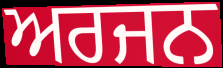
ਅਰਜਨ